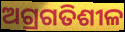
ଅଗ୍ରଗତିଶୀଳ